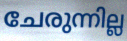
ചേരുന്നില്ല